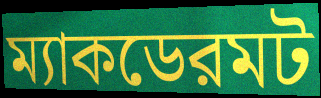
ম্যাকডেরমট